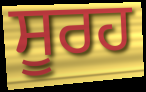
ਸੂਰਹ